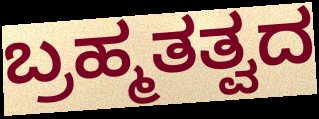
ಬ್ರಹ್ಮತತ್ವದ